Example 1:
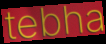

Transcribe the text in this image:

tebha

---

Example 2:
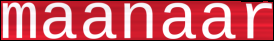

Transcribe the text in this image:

maanaar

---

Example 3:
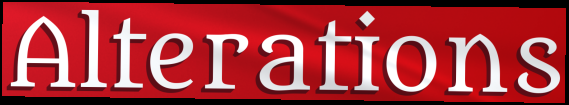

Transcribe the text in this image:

Alterations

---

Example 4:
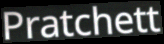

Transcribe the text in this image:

Pratchett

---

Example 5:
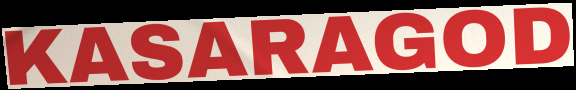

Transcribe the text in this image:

KASARAGOD